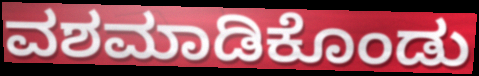
ವಶಮಾಡಿಕೊಂಡು